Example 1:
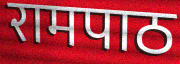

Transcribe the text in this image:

रामपाठ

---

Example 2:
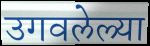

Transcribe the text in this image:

उगवलेल्या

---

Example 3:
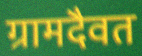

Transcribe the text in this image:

ग्रामदैवत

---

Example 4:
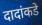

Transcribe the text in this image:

दादांकडे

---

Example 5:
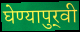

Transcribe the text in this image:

घेण्यापुर्वी